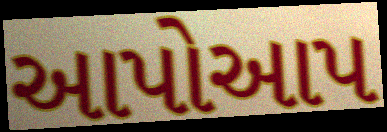
આપોઆપ